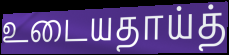
உடையதாய்த்